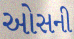
ઓસની